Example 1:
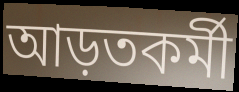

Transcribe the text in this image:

আড়তকর্মী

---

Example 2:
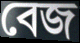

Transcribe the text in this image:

বেজ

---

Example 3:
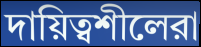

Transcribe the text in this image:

দায়িত্বশীলেরা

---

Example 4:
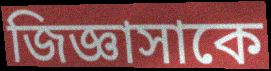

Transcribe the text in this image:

জিজ্ঞাসাকে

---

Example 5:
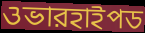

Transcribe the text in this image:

ওভারহাইপড